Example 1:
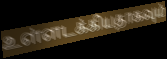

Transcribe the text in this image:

உள்ளடக்கியதாகவும்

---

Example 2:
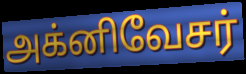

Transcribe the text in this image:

அக்னிவேசர்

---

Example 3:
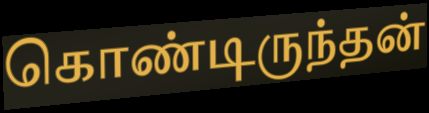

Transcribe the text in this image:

கொண்டிருந்தன்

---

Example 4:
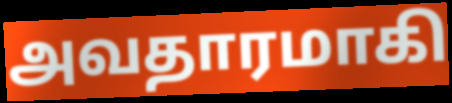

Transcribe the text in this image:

அவதாரமாகி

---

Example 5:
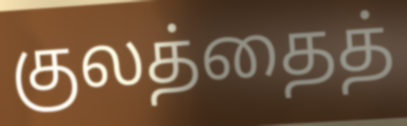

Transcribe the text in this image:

குலத்தைத்